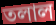
তলাল